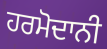
ਹਰਮੋਦਾਨੀ